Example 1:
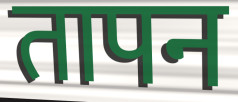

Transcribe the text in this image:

तापन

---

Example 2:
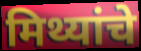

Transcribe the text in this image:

मिथ्यांचे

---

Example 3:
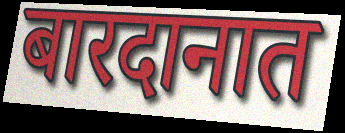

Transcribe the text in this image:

बारदानात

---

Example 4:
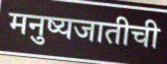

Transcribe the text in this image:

मनुष्यजातीची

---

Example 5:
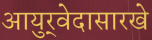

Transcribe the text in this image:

आयुर्वेदासारखे